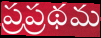
ప్రప్రథమ